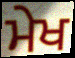
ਮੇਖ